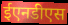
ईएनडीएस